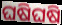
ଘଷିଘଷି